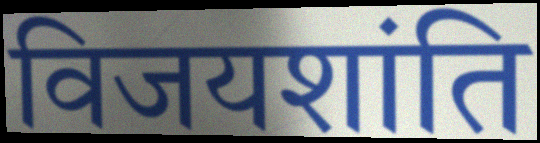
विजयशांति